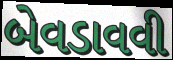
બેવડાવવી